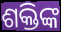
ଶକ୍ତିଙ୍କ